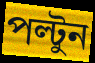
পল্টুন